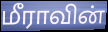
மீராவின்